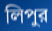
লিপুর